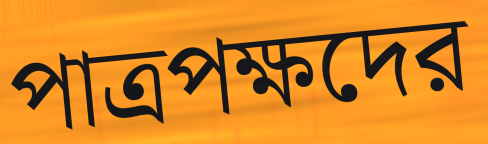
পাত্রপক্ষদের